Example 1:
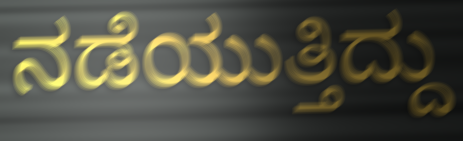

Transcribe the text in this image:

ನಡೆಯುತ್ತಿದ್ದು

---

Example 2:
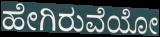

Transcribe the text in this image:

ಹೇಗಿರುವೆಯೋ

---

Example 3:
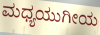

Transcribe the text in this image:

ಮಧ್ಯಯುಗೀಯ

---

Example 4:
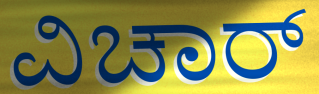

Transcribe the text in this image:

ವಿಚಾರ್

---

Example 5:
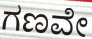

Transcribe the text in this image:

ಗಣವೇ